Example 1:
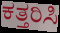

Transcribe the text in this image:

ಕತ್ತರಿಸಿ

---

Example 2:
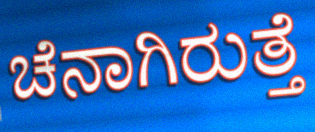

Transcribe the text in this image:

ಚೆನಾಗಿರುತ್ತೆ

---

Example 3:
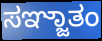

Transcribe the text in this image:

ಸಞ್ಜಾತಂ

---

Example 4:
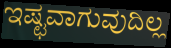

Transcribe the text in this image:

ಇಷ್ಟವಾಗುವುದಿಲ್ಲ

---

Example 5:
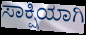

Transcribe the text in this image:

ಸಾಕ್ಷಿಯಾಗಿ